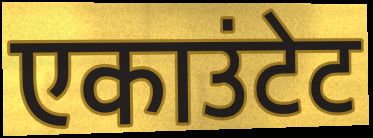
एकाउंटेट